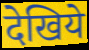
देखिये